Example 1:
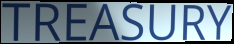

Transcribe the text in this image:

TREASURY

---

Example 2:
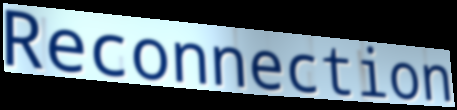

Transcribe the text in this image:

Reconnection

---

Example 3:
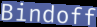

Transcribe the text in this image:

Bindoff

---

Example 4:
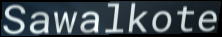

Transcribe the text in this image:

Sawalkote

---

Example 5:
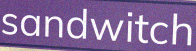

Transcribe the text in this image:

sandwitch